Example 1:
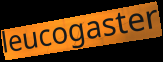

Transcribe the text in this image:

leucogaster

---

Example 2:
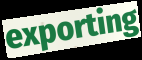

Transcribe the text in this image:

exporting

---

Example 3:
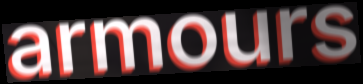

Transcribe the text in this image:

armours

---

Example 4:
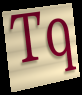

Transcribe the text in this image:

Tq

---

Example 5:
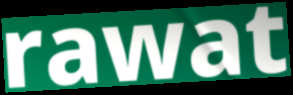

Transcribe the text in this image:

rawat